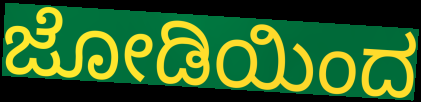
ಜೋಡಿಯಿಂದ